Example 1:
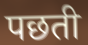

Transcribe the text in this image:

पछती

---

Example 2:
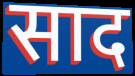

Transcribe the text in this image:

साद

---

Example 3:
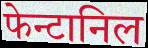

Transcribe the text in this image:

फेन्टानिल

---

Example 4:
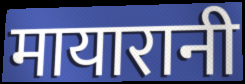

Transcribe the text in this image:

मायारानी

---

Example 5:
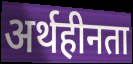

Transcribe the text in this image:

अर्थहीनता